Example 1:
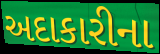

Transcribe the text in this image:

અદાકારીના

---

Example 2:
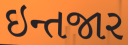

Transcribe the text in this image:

ઇન્તજાર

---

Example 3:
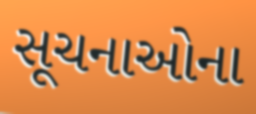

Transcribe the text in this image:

સૂચનાઓના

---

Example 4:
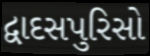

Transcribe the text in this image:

દ્વાદસપુરિસો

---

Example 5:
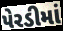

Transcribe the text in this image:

પેરડીમાં